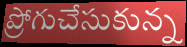
ప్రోగుచేసుకున్న